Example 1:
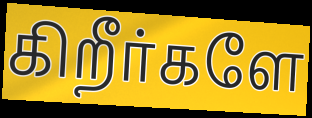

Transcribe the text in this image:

கிறீர்களே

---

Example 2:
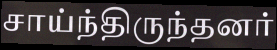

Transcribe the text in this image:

சாய்ந்திருந்தனர்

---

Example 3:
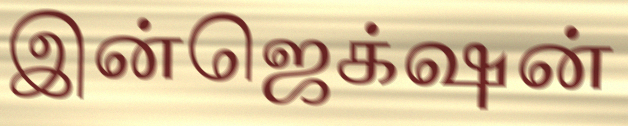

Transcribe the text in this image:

இன்ஜெக்‌ஷன்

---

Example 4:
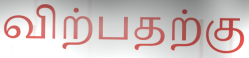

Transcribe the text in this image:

விற்பதற்கு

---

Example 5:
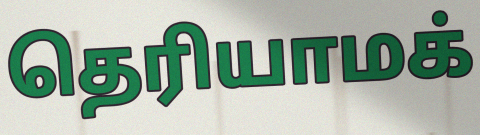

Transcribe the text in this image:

தெரியாமக்